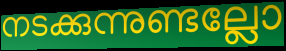
നടക്കുന്നുണ്ടല്ലോ